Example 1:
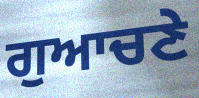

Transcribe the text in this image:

ਗੁਆਚਣੇ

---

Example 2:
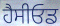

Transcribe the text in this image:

ਹੈਸੀਓਡ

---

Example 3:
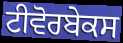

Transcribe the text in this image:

ਟੀਵੋਰਬੇਕਸ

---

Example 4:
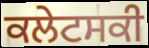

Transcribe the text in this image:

ਕਲੇਟਸਕੀ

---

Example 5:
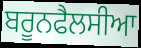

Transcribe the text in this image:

ਬਰੂਨਫੈਲਸੀਆ